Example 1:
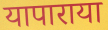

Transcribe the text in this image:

यापाराया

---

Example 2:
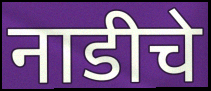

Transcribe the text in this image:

नाडीचे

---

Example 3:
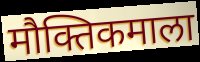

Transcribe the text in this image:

मौक्तिकमाला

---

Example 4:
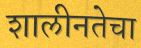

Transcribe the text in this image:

शालीनतेचा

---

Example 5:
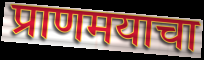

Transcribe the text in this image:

प्राणमयाचा